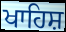
ਖਾਹਿਸ਼